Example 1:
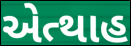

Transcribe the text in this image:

એત્થાહ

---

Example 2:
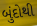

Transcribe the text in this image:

બુંદોથી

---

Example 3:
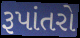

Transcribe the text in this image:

રૂપાંતરો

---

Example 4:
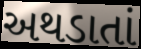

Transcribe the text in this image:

અથડાતાં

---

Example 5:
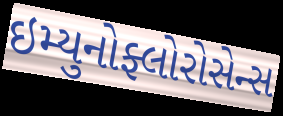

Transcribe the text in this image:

ઇમ્યુનોફ્લોરોસેન્સ